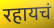
रहायचं